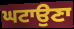
ਘਟਾਉਣਾ